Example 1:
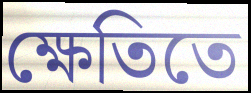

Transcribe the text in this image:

ক্ষেতিতে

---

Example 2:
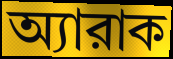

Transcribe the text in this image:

অ্যারাক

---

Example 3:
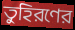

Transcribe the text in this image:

তুহিরণের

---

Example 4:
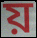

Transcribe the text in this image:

য়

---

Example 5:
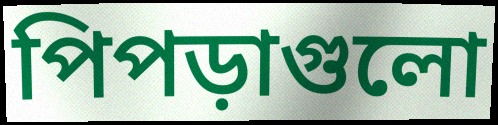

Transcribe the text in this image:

পিপড়াগুলো